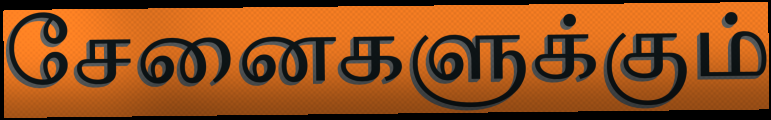
சேனைகளுக்கும்